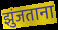
झुंजताना